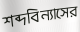
শব্দবিন্যাসের